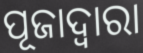
ପୂଜାଦ୍ଵାରା